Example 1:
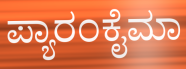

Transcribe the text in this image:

ಪ್ಯಾರಂಕೈಮಾ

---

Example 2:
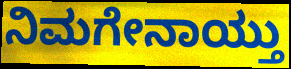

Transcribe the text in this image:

ನಿಮಗೇನಾಯ್ತು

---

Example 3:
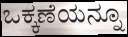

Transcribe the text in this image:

ಒಕ್ಕಣೆಯನ್ನೂ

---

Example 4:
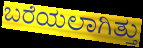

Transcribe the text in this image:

ಬರೆಯಲಾಗಿತ್ತು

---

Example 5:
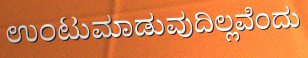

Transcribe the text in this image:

ಉಂಟುಮಾಡುವುದಿಲ್ಲವೆಂದು